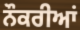
ਨੌਕਰੀਆਂ